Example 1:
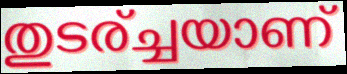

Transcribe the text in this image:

തുടര്ച്ചയാണ്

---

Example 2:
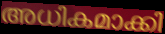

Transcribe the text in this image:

അധികമാക്കി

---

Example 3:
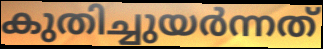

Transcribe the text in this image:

കുതിച്ചുയർന്നത്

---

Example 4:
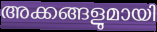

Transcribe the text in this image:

അക്കങ്ങളുമായി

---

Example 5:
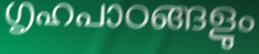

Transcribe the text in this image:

ഗൃഹപാഠങ്ങളും